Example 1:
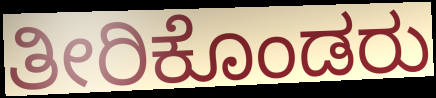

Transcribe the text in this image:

ತೀರಿಕೊಂಡರು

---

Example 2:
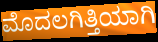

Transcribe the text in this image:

ಮೊದಲಗಿತ್ತಿಯಾಗಿ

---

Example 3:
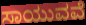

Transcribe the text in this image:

ಸಾಯುವವೆ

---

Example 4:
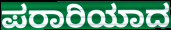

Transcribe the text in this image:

ಪರಾರಿಯಾದ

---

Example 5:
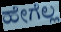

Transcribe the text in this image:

ಹೇಗೆಲ್ಲ